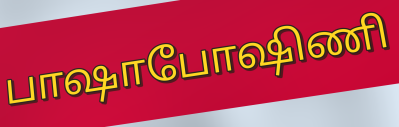
பாஷாபோஷிணி